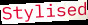
Stylised